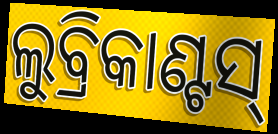
ଲୁବ୍ରିକାଣ୍ଟସ୍